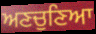
ਅਣਚੁਣਿਆ